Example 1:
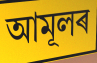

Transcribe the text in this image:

আমূলৰ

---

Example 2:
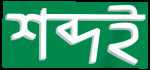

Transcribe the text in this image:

শব্দই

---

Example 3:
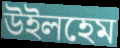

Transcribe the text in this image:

উইলহেম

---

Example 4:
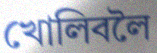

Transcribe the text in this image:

খোলিবলৈ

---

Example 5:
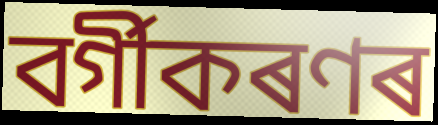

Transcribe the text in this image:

বৰ্গীকৰণৰ